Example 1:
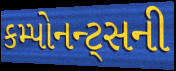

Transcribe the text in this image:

કમ્પોનન્ટ્સની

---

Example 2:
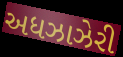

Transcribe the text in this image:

અધઝાઝેરી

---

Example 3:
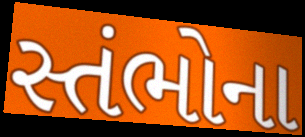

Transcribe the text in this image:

સ્તંભોના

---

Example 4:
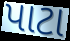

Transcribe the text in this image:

પાટા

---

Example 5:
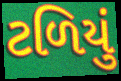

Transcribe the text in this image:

ટળિયું